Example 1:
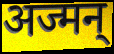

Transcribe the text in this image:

अज्मन्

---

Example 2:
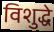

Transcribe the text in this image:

विशुद्धे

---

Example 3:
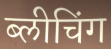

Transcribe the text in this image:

ब्लीचिंग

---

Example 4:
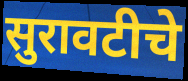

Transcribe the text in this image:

सुरावटीचे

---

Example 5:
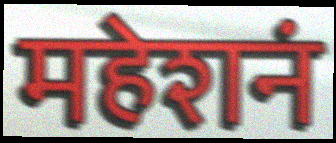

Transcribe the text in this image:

महेशनं